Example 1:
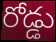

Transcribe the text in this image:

రోడ్డు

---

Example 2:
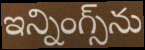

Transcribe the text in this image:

ఇన్నింగ్స్‌ను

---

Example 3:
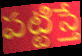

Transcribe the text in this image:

పట్టిస్తే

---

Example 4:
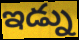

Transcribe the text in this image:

ఇడ్ను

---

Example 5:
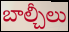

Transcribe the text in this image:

బాల్చీలు